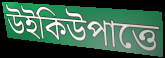
উইকিউপাত্তে